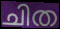
ചിത